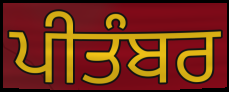
ਪੀਤੰਬਰ